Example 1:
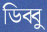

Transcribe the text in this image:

ডিব্বু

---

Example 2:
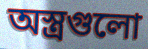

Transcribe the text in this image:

অস্ত্রগুলো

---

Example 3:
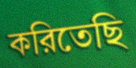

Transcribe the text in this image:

করিতেছি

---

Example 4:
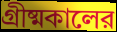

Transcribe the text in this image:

গ্রীষ্মকালের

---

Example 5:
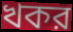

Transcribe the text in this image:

খকর